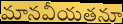
మానవీయతనూ